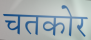
चतकोर